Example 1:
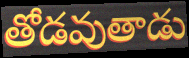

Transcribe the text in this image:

తోడవుతాడు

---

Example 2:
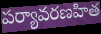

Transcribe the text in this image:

పర్యావరణహిత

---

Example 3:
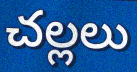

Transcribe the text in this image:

చల్లలు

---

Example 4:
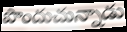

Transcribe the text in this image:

పొందుచున్నాడు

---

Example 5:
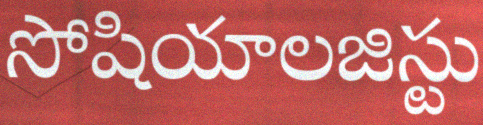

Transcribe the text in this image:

సోషియాలజిస్టు